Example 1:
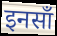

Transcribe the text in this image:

इनसाँ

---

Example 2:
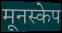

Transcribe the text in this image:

मूनस्केप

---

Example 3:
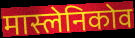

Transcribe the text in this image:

मास्लेनिकोव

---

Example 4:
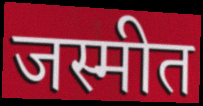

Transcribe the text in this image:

जस्मीत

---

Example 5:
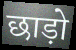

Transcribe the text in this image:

छाड़ो